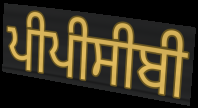
ਪੀਪੀਸੀਬੀ